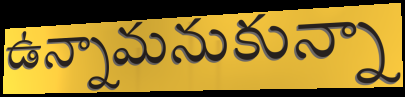
ఉన్నామనుకున్నా